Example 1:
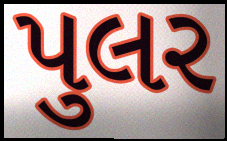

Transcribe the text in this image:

પુલર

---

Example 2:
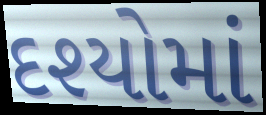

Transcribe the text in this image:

દશ્યોમાં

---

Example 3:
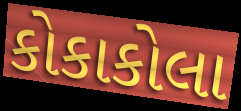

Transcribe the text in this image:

કોકાકોલા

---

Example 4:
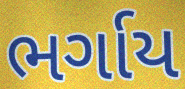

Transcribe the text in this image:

ભર્ગાય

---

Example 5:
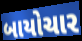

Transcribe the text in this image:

બાયોચાર